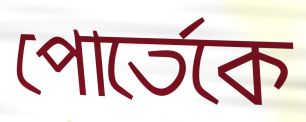
পোর্তেকে